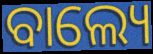
ବାଲ୍ୟେ